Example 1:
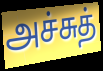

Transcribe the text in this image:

அச்சுத்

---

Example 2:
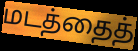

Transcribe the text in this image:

மடத்தைத்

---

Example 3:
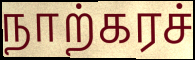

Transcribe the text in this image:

நாற்கரச்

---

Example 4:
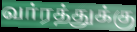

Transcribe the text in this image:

வர்ரத்துக்கு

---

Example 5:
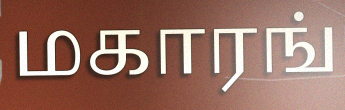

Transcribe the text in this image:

மகாரங்